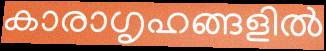
കാരാഗൃഹങ്ങളിൽ